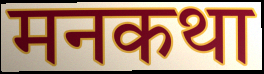
मनकथा